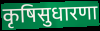
कृषिसुधारणा